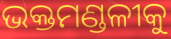
ଭକ୍ତମଣ୍ଡଳୀକୁ